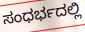
ಸಂಧರ್ಭದಲ್ಲಿ